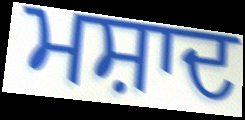
ਮਸ਼ਾਦ